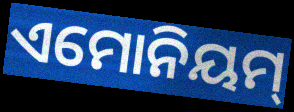
ଏମୋନିୟମ୍